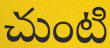
చుంటి